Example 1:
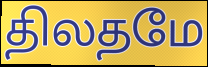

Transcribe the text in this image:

திலதமே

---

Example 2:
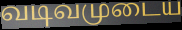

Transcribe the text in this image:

வடிவமுடைய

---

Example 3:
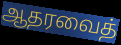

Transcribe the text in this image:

ஆதரவைத்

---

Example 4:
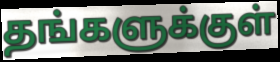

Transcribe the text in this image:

தங்களுக்குள்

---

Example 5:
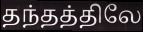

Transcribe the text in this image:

தந்தத்திலே